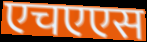
एचएएस